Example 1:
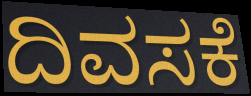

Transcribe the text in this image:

ದಿವಸಕೆ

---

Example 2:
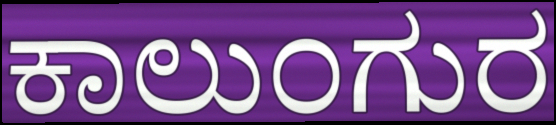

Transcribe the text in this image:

ಕಾಲುಂಗುರ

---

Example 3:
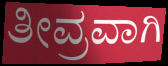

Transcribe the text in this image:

ತೀವ್ರವಾಗಿ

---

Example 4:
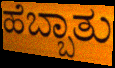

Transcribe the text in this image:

ಹೆಬ್ಬಾತು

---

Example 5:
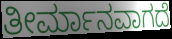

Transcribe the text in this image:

ತೀರ್ಮಾನವಾಗದೆ